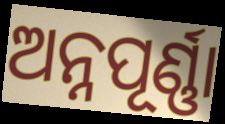
ଅନ୍ନପୂର୍ଣ୍ଣା